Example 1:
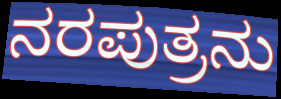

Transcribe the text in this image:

ನರಪುತ್ರನು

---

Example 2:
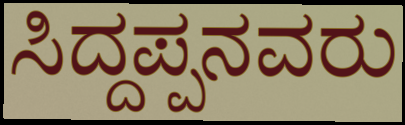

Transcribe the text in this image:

ಸಿದ್ದಪ್ಪನವರು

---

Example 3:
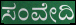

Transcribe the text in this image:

ಸಂವೇದಿ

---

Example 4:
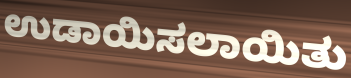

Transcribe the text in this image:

ಉಡಾಯಿಸಲಾಯಿತು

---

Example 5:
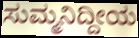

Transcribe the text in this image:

ಸುಮ್ಮನಿದ್ದೀಯ